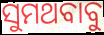
ସୁମଥବାବୁ